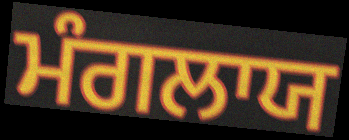
ਮੰਗਲਾਯ